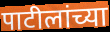
पाटीलांच्या